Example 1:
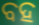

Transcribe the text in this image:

ବହ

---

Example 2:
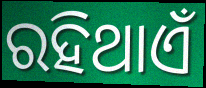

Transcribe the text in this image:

ରହିଥାଏଁ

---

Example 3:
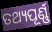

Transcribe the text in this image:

ତଥ୍ୟପୂର୍ଣ୍ଣ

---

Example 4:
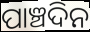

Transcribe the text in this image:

ପାଞ୍ଚଦିନ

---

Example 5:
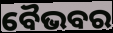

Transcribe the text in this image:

ବୈଭବର